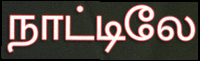
நாட்டிலே